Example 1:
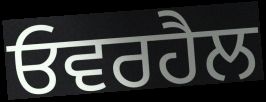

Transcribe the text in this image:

ਓਵਰਹੈਲ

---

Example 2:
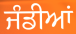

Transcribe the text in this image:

ਜੰਡੀਆਂ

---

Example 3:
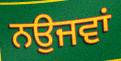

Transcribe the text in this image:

ਨਉਜਵਾਂ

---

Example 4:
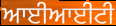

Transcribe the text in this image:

ਆਈਆਈਟੀ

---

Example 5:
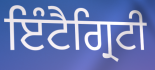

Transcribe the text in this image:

ਇੰਟੈਗ੍ਰਿਟੀ